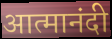
आत्मानंदी